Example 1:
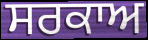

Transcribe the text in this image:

ਸਰਕਾਅ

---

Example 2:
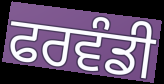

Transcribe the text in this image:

ਫਰਵੰਡੀ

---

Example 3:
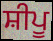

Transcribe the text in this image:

ਸ਼ੀਪੂ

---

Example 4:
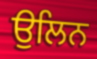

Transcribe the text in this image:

ਉਲਿਨ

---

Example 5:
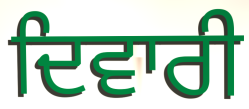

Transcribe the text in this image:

ਦਿਵਾਰੀ